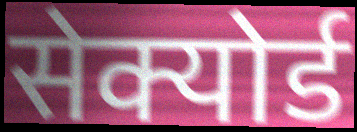
सेक्योर्ड